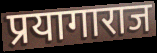
प्रयागाराज